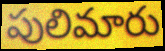
పులిమారు